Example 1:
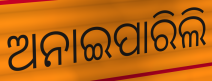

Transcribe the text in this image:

ଅନାଇପାରିଲି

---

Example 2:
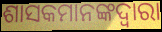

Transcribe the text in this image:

ଶାସକମାନଙ୍କଦ୍ୱାରା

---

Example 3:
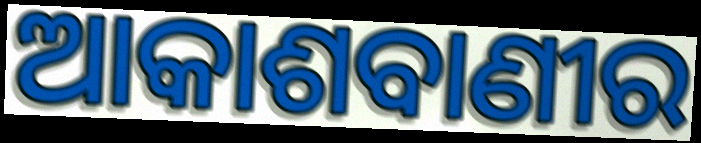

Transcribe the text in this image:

ଆକାଶବାଣୀର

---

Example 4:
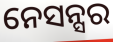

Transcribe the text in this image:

ନେସନ୍ସର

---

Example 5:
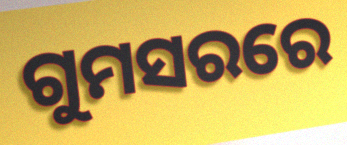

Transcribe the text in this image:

ଗୁମସରରେ